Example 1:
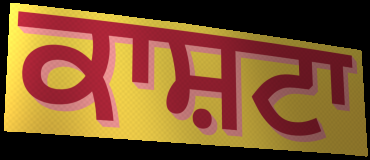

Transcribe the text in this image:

ਕਾਸ਼ਟਾ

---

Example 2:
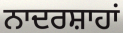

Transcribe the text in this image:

ਨਾਦਰਸ਼ਾਹਾਂ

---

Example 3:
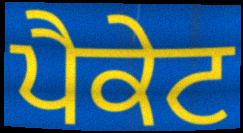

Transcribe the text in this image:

ਪੈਕੇਟ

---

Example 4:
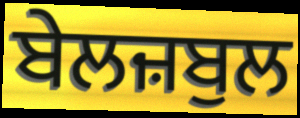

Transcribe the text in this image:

ਬੇਲਜ਼ਬੁਲ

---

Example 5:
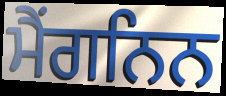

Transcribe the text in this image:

ਮੈਂਗਨਿਨ